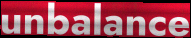
unbalance